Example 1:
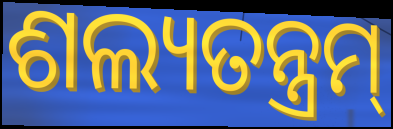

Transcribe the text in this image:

ଶଲ୍ୟତନ୍ତ୍ରମ୍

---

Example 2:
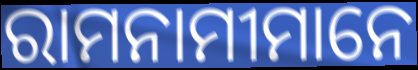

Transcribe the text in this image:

ରାମନାମୀମାନେ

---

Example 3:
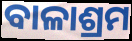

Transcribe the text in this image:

ବାଳାଶ୍ରମ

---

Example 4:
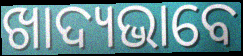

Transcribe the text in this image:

ଖାଦ୍ୟଭାବେ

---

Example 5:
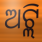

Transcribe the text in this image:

ଅଟ୍ଲି